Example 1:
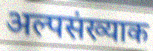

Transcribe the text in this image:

अल्पसंख्याक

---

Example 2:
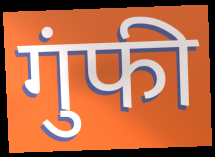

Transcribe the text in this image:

गुंफी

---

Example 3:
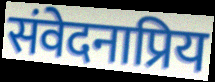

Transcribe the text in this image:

संवेदनाप्रिय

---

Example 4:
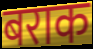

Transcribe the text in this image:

बराक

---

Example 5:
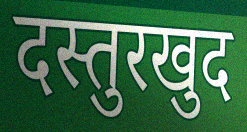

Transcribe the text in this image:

दस्तुरखुद